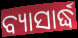
ବ୍ୟାସାର୍ଦ୍ଧ